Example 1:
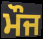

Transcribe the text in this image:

ਮੌਜ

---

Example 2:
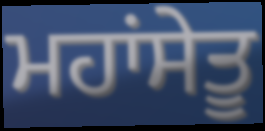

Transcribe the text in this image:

ਮਹਾਂਸੇਤੂ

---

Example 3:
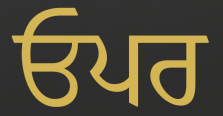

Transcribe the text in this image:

ਓਪਰ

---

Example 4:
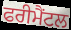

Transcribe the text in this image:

ਫਰੀਮੈਂਟਲ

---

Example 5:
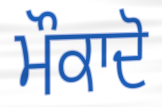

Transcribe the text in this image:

ਮੌਕਾਦੋ